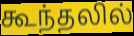
கூந்தலில்